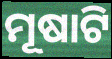
ମୂଷାଟି